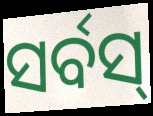
ସର୍ବସ୍